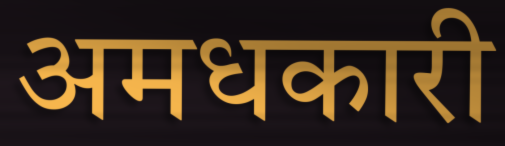
अमधकारी